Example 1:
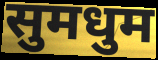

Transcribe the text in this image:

सुमधुम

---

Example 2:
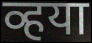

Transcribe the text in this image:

व्हया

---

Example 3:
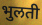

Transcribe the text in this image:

भुलती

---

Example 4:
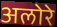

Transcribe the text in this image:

अलोरे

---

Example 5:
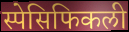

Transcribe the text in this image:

स्पेसिफिकली